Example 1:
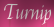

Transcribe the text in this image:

Turnip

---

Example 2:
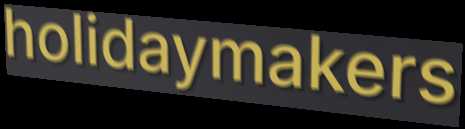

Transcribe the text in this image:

holidaymakers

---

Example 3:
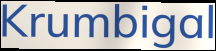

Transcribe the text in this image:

Krumbigal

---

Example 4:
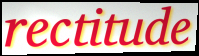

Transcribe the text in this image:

rectitude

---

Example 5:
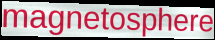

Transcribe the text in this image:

magnetosphere